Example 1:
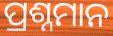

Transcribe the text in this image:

ପ୍ରଶ୍ନମାନ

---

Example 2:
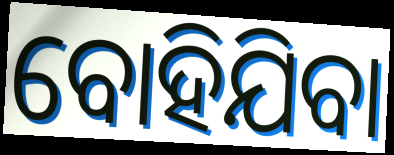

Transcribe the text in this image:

ବୋହିଯିବା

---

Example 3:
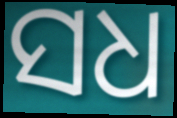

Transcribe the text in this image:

ସଧ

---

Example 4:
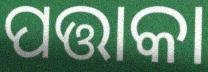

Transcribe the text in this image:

ପତ୍ତାକା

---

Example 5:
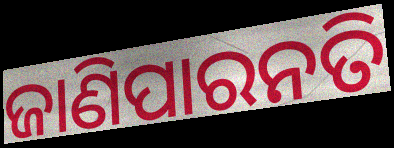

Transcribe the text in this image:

ଜାଣିପାରନତି